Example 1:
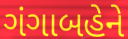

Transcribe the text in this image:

ગંગાબહેને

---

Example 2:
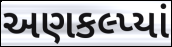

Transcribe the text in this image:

અણકલ્પ્યાં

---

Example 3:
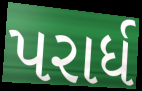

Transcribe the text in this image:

પરાર્ધ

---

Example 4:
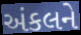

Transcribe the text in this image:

અંકલને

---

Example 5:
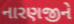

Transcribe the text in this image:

નારણજીને